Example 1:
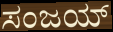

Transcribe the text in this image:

ಸಂಜಯ್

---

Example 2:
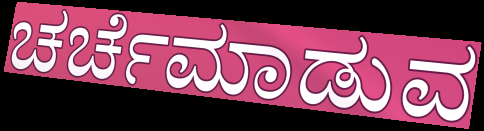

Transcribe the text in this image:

ಚರ್ಚೆಮಾಡುವ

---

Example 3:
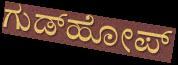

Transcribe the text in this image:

ಗುಡ್‌ಹೋಪ್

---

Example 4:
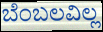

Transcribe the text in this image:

ಬೆಂಬಲವಿಲ್ಲ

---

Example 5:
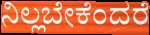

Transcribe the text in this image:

ನಿಲ್ಲಬೇಕೆಂದರೆ